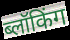
ब्लॉकिंग